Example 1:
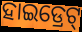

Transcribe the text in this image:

ହାଇଡ୍ରେଟ୍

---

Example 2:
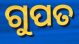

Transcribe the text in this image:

ଗୁପତ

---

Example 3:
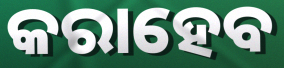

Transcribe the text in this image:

କରାହେବ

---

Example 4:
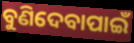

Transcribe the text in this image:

ବୁଣିଦେବାପାଇଁ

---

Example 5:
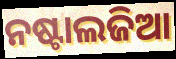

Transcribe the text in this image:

ନଷ୍ଟାଲଜିଆ